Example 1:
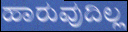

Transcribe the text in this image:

ಹಾರುವುದಿಲ್ಲ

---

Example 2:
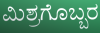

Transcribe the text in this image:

ಮಿಶ್ರಗೊಬ್ಬರ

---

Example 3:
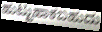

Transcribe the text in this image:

ಹುಟ್ಟುಹಾಕಬಹುದು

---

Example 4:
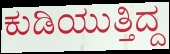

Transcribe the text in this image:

ಕುಡಿಯುತ್ತಿದ್ದ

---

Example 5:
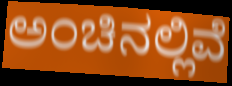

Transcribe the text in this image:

ಅಂಚಿನಲ್ಲಿವೆ